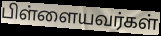
பிள்ளையவர்கள்